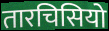
तारचिसियो